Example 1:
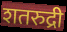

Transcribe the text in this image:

शतरुद्री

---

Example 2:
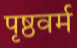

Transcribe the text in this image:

पृष्ठवर्म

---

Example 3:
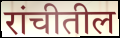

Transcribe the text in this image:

रांचीतील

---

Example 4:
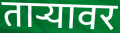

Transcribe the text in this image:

ताऱ्यावर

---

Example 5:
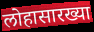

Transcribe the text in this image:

लोहासारख्या